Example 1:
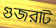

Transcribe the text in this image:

গুজরাট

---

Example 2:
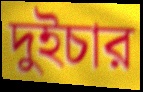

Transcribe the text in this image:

দুইচার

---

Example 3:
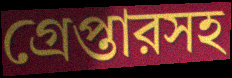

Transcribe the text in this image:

গ্রেপ্তারসহ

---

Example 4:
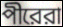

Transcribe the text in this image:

পীরেরা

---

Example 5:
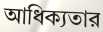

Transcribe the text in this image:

আধিক্যতার